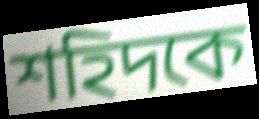
শহিদকে